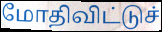
மோதிவிட்டுச்